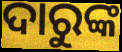
ଦାରୁଙ୍କ